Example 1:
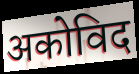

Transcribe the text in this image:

अकोविद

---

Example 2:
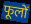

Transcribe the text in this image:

फूलों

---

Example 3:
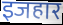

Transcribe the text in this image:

इजहार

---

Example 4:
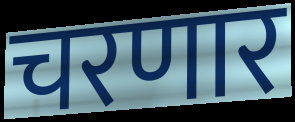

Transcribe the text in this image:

चरणार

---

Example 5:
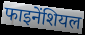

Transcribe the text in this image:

फाइनेंशियल